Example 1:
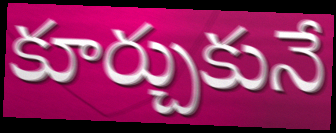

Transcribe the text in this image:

కూర్చుకునే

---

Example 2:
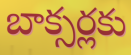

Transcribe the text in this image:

బాక్సర్లకు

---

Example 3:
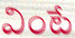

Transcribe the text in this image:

వింటే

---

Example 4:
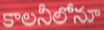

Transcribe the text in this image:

కాలనీలోనూ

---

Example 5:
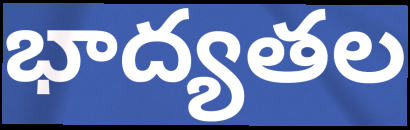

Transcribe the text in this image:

భాద్యతల